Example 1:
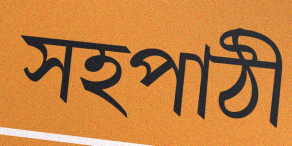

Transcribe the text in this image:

সহপাঠী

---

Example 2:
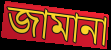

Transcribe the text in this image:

জামানা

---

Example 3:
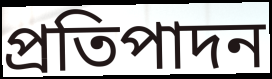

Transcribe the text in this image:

প্ৰতিপাদন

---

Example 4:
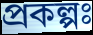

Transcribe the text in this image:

প্ৰকল্পঃ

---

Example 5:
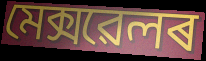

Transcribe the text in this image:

মেক্সৱেলৰ